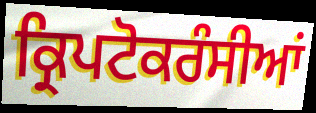
ਕ੍ਰਿਪਟੋਕਰੰਸੀਆਂ